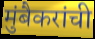
मुंबैकरांची